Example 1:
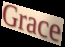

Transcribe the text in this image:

Grace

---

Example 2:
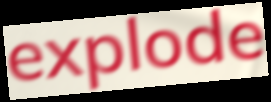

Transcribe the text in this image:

explode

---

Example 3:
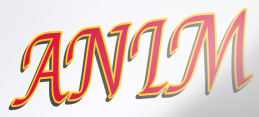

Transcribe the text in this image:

ANIM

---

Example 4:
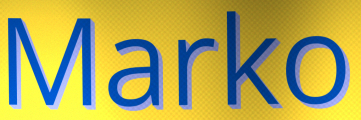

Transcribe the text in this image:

Marko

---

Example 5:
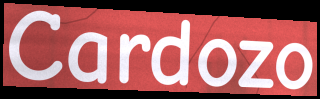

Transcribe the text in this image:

Cardozo